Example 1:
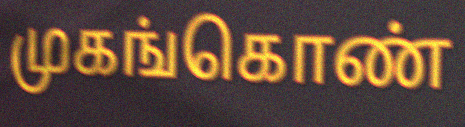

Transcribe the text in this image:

முகங்கொண்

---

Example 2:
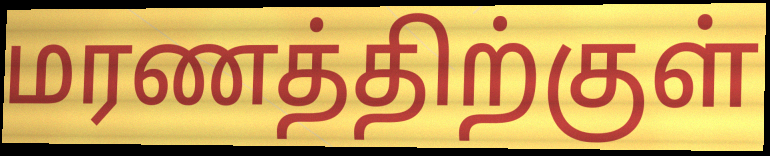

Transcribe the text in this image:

மரணத்திற்குள்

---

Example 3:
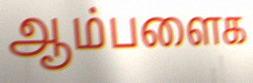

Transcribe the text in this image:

ஆம்பளைக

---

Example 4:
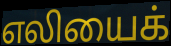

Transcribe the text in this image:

எலியைக்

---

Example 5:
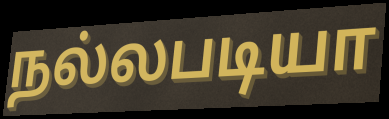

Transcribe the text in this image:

நல்லபடியா